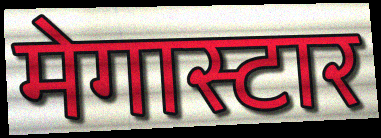
मेगास्टार